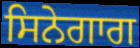
ਸਿਨੇਗਾਗ